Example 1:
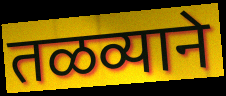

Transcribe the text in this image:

तळव्याने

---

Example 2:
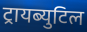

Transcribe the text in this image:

ट्रायब्युटिल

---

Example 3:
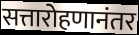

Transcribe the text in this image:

सत्तारोहणानंतर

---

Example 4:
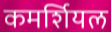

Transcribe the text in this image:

कमर्शियल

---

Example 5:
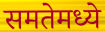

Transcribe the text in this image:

समतेमध्ये